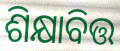
ଶିକ୍ଷାବିତ୍ତ